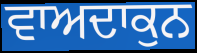
ਵਾਅਦਾਕੁਨ